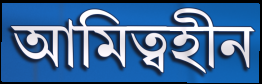
আমিত্বহীন